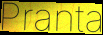
Pranta